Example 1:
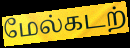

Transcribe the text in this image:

மேல்கடற்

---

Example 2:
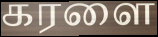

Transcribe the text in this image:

கரளை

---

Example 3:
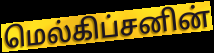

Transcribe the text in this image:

மெல்கிப்சனின்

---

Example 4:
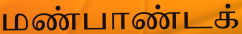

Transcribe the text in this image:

மண்பாண்டக்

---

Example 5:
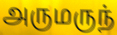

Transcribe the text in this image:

அருமருந்